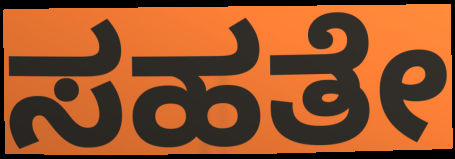
ಸಹತೇ